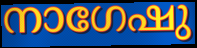
നാഗേഷു